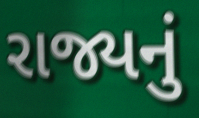
રાજ્યનું